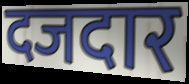
दजदार